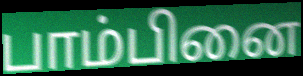
பாம்பினை